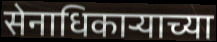
सेनाधिकाऱ्याच्या